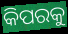
କିପରକୁ